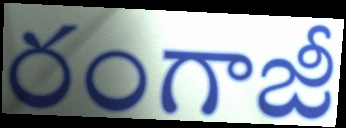
రంగాజీ